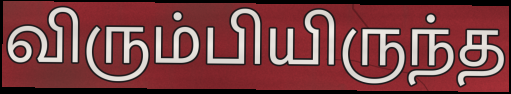
விரும்பியிருந்த